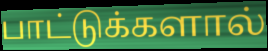
பாட்டுக்களால்